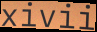
xivii